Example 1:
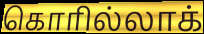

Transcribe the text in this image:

கொரில்லாக்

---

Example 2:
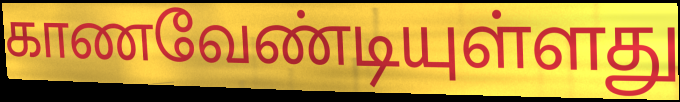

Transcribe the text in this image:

காணவேண்டியுள்ளது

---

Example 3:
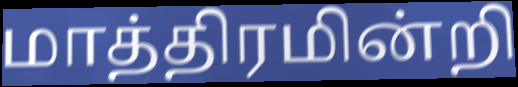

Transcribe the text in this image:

மாத்திரமின்றி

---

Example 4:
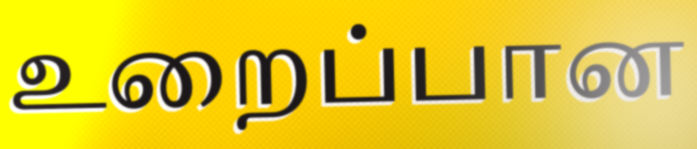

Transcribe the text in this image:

உறைப்பான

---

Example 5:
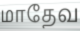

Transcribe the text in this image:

மாதேவ